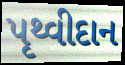
પૃથ્વીદાન